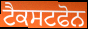
ਟੈਕਸਟਫੋਨ